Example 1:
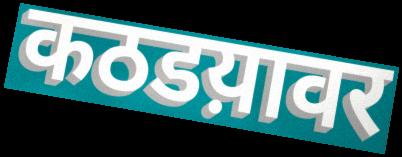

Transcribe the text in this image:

कठडय़ावर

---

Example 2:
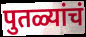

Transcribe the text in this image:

पुतळ्यांचं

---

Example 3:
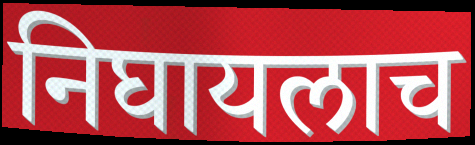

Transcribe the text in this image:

निघायलाच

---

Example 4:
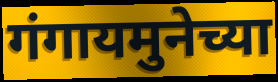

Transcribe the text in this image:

गंगायमुनेच्या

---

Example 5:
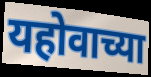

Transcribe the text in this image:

यहोवाच्या